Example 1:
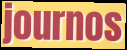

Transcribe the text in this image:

journos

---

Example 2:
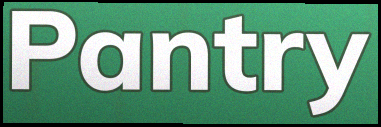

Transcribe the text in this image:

Pantry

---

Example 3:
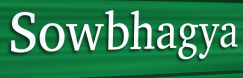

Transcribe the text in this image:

Sowbhagya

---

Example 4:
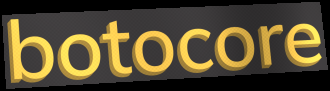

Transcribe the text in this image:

botocore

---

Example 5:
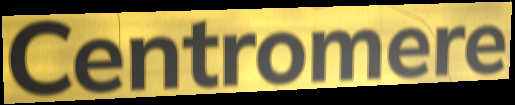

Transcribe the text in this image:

Centromere